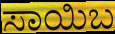
ಸಾಯಿಬ